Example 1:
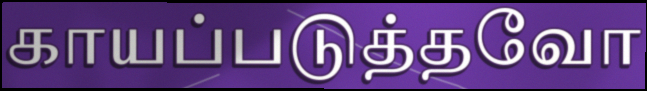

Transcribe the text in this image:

காயப்படுத்தவோ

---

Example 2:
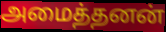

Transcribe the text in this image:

அமைத்தனன்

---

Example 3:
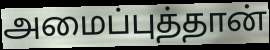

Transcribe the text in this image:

அமைப்புத்தான்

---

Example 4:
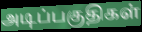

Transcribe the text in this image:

அடிப்பகுதிகள்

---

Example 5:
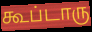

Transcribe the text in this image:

கூப்டாரு